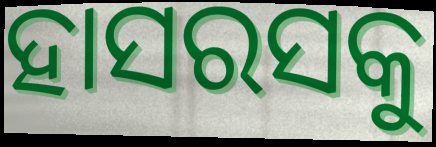
ହାସରସକୁ